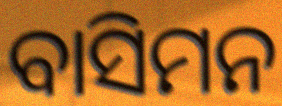
ବାସିମନ